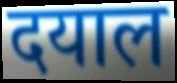
दयाल